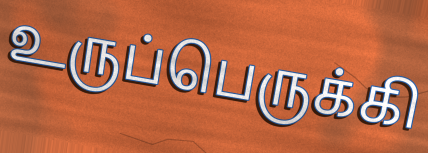
உருப்பெருக்கி